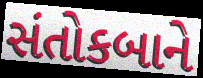
સંતોકબાને